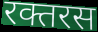
रक्तरस